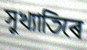
সুখ্যাতিৰে